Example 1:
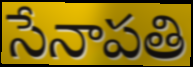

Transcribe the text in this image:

సేనాపతి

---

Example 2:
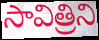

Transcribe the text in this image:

సావిత్రిని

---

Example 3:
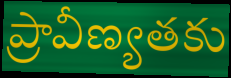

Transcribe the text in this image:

ప్రావీణ్యతకు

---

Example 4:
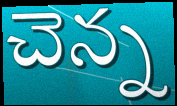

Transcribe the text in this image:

చెన్న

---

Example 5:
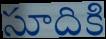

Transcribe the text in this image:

సూదికి